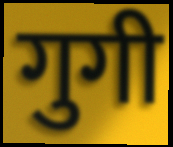
गुगी